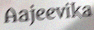
Aajeevika